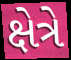
ક્ષેત્રે